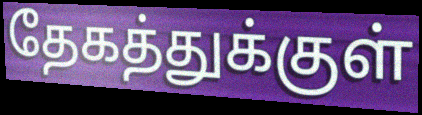
தேகத்துக்குள்